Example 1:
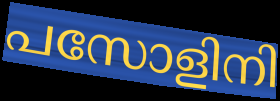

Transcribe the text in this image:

പസോളിനി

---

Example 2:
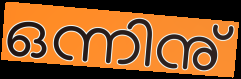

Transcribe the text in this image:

ഒന്നിനു്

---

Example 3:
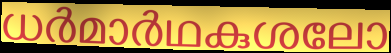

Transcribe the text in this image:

ധർമാർഥകുശലോ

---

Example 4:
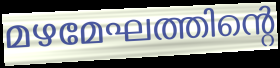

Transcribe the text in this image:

മഴമേഘത്തിന്റെ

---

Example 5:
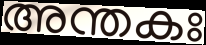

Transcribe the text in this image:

അന്തകഃ